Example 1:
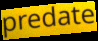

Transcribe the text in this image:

predate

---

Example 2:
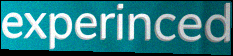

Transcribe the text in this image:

experinced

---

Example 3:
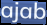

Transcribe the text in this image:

ajab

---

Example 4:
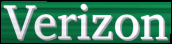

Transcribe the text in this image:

Verizon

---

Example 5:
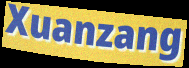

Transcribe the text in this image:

Xuanzang